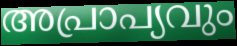
അപ്രാപ്യവും